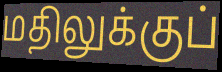
மதிலுக்குப்